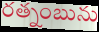
రత్నంబును